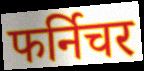
फर्निचर